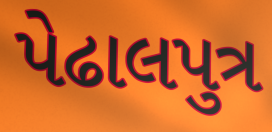
પેઢાલપુત્ર